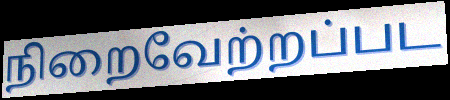
நிறைவேற்றப்பட